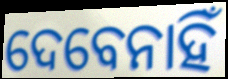
ଦେବେନାହିଁ